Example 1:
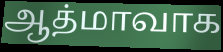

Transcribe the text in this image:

ஆத்மாவாக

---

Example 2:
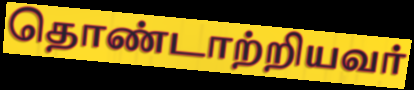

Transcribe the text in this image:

தொண்டாற்றியவர்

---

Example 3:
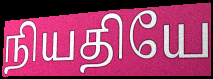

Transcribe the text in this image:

நியதியே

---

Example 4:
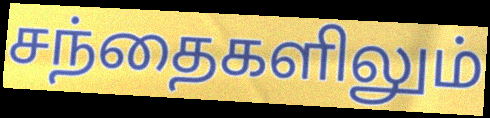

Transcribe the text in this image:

சந்தைகளிலும்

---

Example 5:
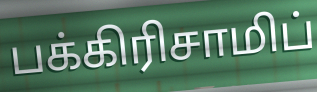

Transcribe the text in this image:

பக்கிரிசாமிப்